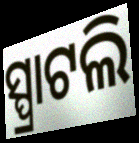
ସ୍ପ୍ରାଟଲି